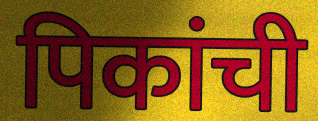
पिकांची